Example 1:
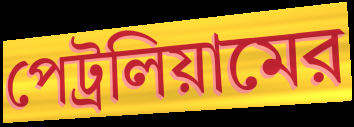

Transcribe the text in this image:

পেট্রলিয়ামের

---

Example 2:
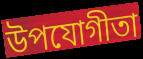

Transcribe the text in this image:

উপযোগীতা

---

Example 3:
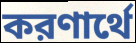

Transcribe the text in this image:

করণার্থে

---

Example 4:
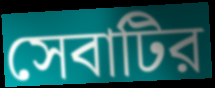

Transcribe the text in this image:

সেবাটির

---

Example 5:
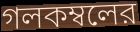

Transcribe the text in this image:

গলকম্বলের